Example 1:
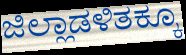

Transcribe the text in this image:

ಜಿಲ್ಲಾಡಳಿತಕ್ಕೂ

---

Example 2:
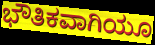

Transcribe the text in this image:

ಭೌತಿಕವಾಗಿಯೂ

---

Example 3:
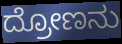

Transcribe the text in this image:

ದ್ರೋಣನು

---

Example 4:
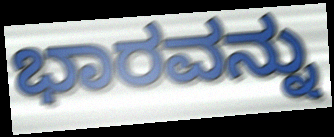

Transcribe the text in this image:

ಭಾರವನ್ನು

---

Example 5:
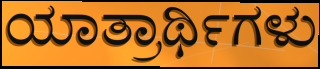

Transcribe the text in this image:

ಯಾತ್ರಾರ್ಥಿಗಳು